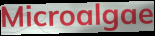
Microalgae